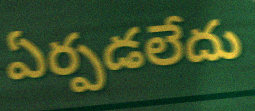
ఏర్పడలేదు